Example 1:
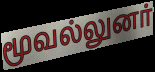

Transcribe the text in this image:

மூவல்லுனர்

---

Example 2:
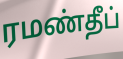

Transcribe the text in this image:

ரமண்தீப்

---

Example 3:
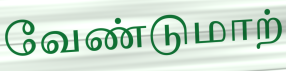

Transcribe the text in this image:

வேண்டுமாற்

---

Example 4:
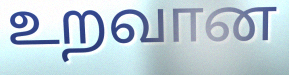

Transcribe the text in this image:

உறவான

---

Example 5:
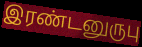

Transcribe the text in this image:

இரண்டனுருபு